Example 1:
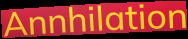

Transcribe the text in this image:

Annhilation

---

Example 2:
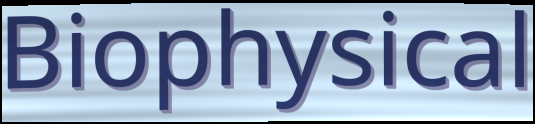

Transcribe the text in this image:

Biophysical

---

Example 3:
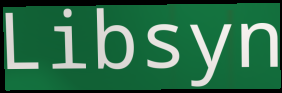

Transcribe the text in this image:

Libsyn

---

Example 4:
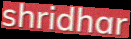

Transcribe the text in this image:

shridhar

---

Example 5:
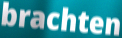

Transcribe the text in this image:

brachten